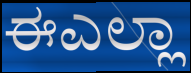
ಈಎಲ್ಲಾ